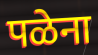
पळेना